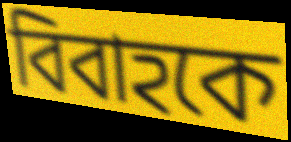
বিবাহকে